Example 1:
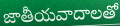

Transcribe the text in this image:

జాతీయవాదాలతో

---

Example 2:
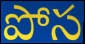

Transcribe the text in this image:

పోస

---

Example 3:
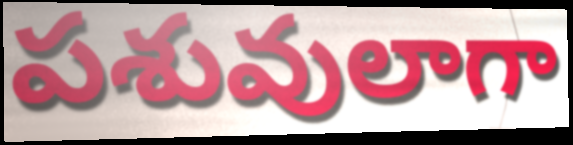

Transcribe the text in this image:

పశువులాగా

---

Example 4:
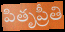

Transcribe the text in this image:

పితృప్రీతి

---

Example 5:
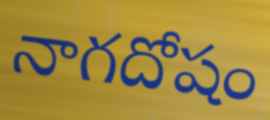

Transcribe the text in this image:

నాగదోషం